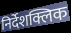
निर्देशक्लिक